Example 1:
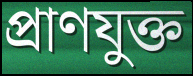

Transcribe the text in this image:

প্রাণযুক্ত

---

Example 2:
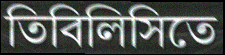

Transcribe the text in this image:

তিবিলিসিতে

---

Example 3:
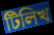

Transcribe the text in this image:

টিলিখ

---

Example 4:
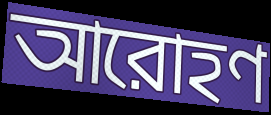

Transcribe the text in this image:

আরোহণ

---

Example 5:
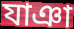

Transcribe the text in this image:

যাঞা